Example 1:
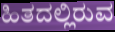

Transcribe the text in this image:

ಹಿತದಲ್ಲಿರುವ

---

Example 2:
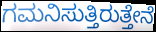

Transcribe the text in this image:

ಗಮನಿಸುತ್ತಿರುತ್ತೇನೆ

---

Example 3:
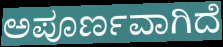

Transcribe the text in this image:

ಅಪೂರ್ಣವಾಗಿದೆ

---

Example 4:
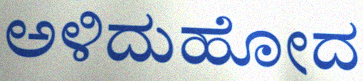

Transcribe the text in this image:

ಅಳಿದುಹೋದ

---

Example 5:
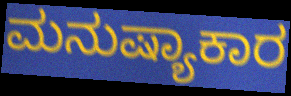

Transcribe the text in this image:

ಮನುಷ್ಯಾಕಾರ